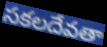
సకలదేవతా